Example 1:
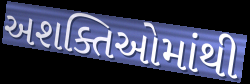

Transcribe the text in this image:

અશક્તિઓમાંથી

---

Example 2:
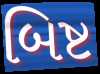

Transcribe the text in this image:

બિષ્ટ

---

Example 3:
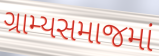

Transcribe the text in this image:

ગ્રામ્યસમાજમાં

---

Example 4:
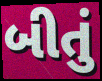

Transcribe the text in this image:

બીતું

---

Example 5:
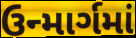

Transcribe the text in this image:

ઉન્માર્ગમાં